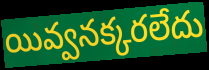
యివ్వనక్కరలేదు